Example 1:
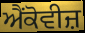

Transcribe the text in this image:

ਐਂਕੋਵੀਜ਼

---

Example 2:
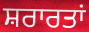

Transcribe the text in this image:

ਸ਼ਰਾਰਤਾਂ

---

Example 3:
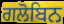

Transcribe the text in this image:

ਗਲੋਬਿਨ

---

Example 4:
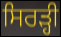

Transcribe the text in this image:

ਸਿਰੜ੍ਹੀ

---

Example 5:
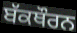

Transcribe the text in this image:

ਬੱਕਥੌਰਨ